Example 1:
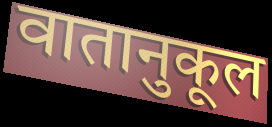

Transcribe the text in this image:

वातानुकूल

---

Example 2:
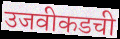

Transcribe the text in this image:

उजवीकडची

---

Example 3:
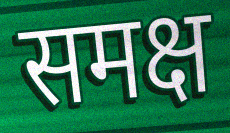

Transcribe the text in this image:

समक्ष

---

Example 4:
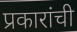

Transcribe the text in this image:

प्रकारांची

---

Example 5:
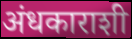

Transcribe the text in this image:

अंधकाराशी